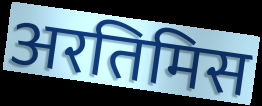
अरतिमिस